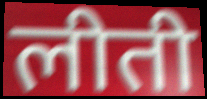
लीती